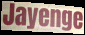
Jayenge